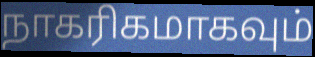
நாகரிகமாகவும்